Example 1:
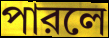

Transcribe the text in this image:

পারলে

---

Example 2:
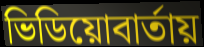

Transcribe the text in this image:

ভিডিয়োবার্তায়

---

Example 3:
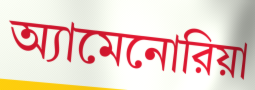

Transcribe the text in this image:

অ্যামেনোরিয়া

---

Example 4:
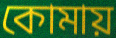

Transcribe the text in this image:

কোমায়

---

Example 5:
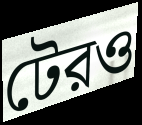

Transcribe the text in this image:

টেরও